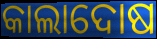
କାଲାଦୋଷ